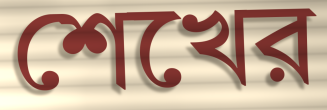
শেখের